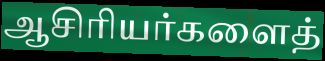
ஆசிரியர்களைத்